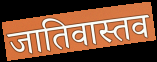
जातिवास्तव